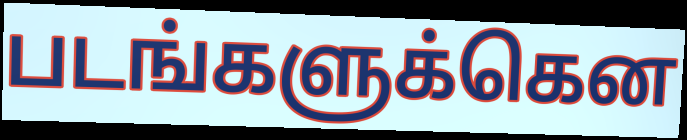
படங்களுக்கென